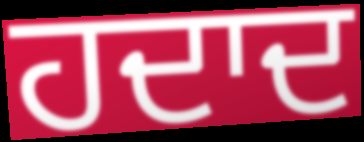
ਹਦਾਦ